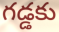
గడ్డకు